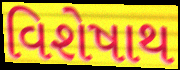
વિશેષાથ